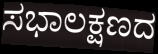
ಸಭಾಲಕ್ಷಣದ